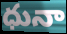
ధునా